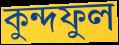
কুন্দফুল